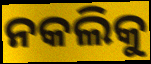
ନକଲିକୁ